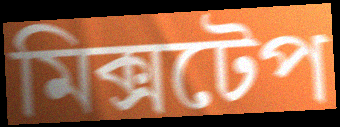
মিক্সটেপ